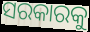
ସରକାରକୁ